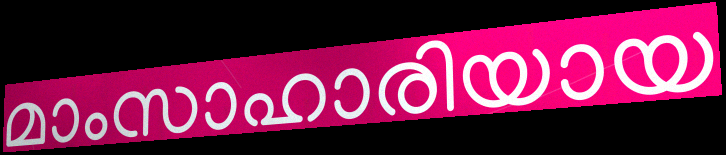
മാംസാഹാരിയായ